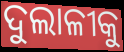
ଦୁଲାଳୀକୁ